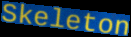
Skeleton